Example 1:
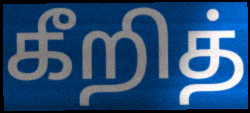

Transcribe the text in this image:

கீறித்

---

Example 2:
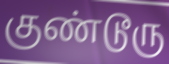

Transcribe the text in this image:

குண்டூரு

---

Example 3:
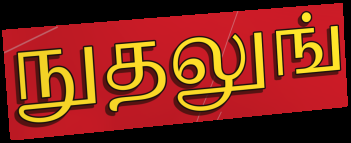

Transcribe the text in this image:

நுதலுங்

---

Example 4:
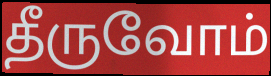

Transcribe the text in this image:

தீருவோம்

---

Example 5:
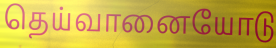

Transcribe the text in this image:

தெய்வானையோடு